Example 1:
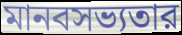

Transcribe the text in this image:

মানবসভ্যতার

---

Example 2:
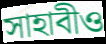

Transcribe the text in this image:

সাহাবীও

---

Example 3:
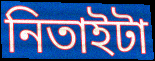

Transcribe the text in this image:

নিতাইটা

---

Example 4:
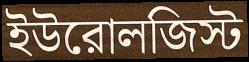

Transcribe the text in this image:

ইউরোলজিস্ট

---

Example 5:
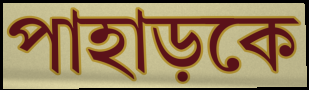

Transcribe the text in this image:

পাহাড়কে